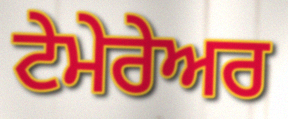
ਟੇਮੇਰੇਅਰ